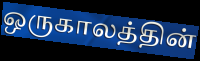
ஒருகாலத்தின்